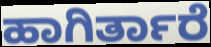
ಹಾಗಿರ್ತಾರೆ